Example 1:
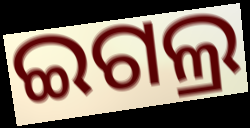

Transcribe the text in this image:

ଇଗଲ୍ର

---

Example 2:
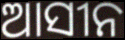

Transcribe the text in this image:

ଆସୀନ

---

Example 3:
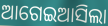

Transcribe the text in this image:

ଆଗେଇଆସିଲା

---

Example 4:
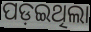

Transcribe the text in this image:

ପଡ଼ଇଥିଲା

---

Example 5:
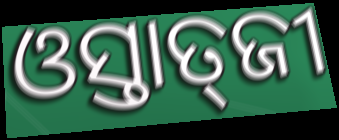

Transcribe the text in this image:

ଓସ୍ତାତ୍‌ଜୀ